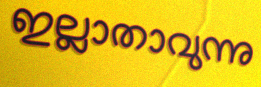
ഇല്ലാതാവുന്നു